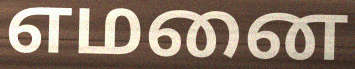
எமனை